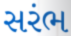
સરંભ